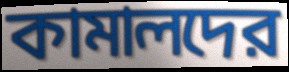
কামালদের